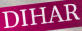
DIHAR